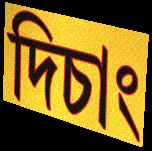
দিচাং